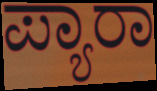
ಪ್ಯಾರಾ